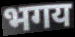
भगय